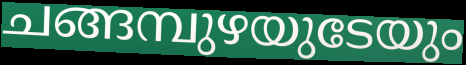
ചങ്ങമ്പുഴയുടേയും